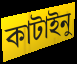
কাটাইনু